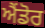
ਐਂਡੋਰ